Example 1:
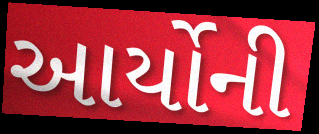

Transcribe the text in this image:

આર્યોની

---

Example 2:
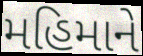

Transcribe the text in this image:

મહિમાને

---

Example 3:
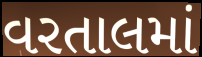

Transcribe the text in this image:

વરતાલમાં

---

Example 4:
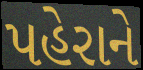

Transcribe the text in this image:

પહેરાને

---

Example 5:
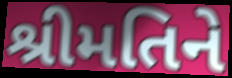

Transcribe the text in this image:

શ્રીમતિને